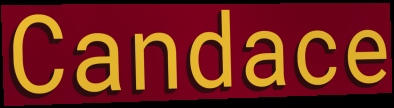
Candace